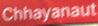
Chhayanaut